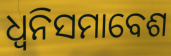
ଧ୍ୱନିସମାବେଶ